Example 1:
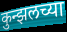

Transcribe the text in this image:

कुन्झलच्या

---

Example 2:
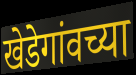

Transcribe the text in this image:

खेडेगांवच्या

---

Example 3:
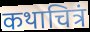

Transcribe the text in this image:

कथाचित्रं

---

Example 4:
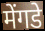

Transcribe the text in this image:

मेंगडे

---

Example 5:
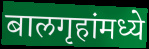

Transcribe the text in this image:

बालगृहांमध्ये